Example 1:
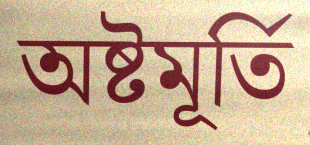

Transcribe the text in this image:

অষ্টমূৰ্তি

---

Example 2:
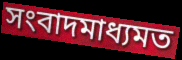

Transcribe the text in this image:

সংবাদমাধ্যমত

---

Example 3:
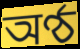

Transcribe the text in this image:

অণ্ঠ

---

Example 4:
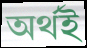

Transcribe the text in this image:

অৰ্থই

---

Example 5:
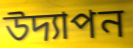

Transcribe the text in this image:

উদ্যাপন